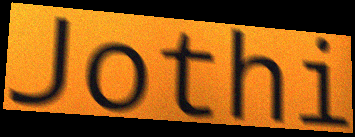
Jothi